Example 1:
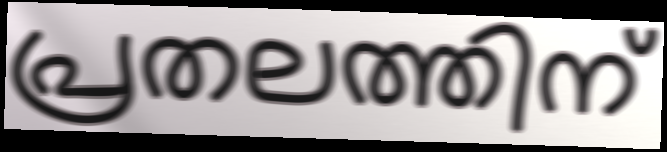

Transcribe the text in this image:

പ്രതലത്തിന്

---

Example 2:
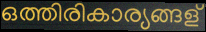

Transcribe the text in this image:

ഒത്തിരികാര്യങ്ങള്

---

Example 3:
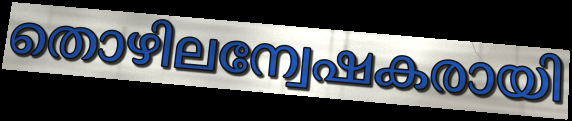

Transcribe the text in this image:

തൊഴിലന്വേഷകരായി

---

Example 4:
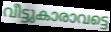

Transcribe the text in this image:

വീട്ടുകാരാവട്ടെ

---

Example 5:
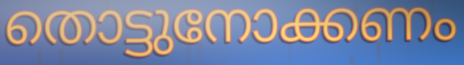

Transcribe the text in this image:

തൊട്ടുനോക്കണം